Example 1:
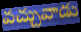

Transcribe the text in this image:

వచ్చువాడు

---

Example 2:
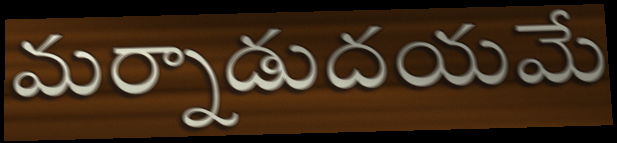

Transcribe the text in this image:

మర్నాడుదయమే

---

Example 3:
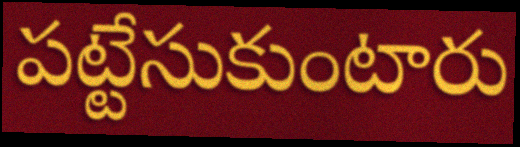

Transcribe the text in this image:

పట్టేసుకుంటారు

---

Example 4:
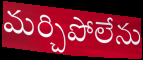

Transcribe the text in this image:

మర్చిపోలేను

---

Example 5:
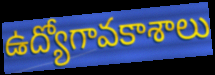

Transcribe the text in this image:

ఉద్యోగావకాశాలు